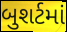
બુશર્ટમાં